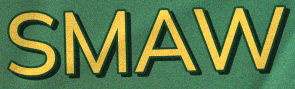
SMAW